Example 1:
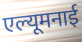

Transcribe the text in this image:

एल्यूमनाई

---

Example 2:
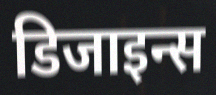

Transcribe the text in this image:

डिजाइन्स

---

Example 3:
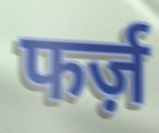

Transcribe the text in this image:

फर्ज़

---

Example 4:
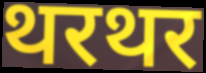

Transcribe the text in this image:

थरथर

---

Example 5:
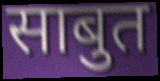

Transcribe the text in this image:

साबुत